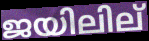
ജയിലില്